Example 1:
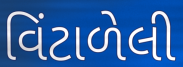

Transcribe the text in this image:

વિંટાળેલી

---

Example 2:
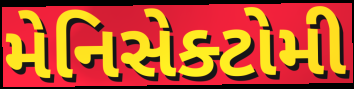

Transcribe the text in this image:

મેનિસેક્ટોમી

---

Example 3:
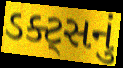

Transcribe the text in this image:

ડક્ટ્સનું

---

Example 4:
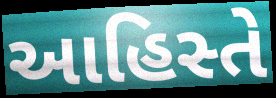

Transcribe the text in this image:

આહિસ્તે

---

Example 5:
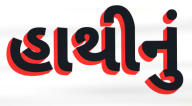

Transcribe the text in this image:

હાથીનું